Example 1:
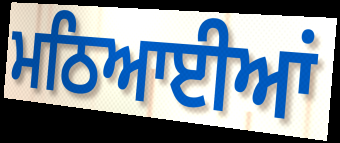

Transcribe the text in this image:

ਮਠਿਆਈਆਂ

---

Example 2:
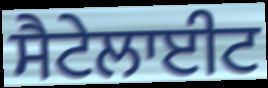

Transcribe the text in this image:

ਸੈਟੇਲਾਈਟ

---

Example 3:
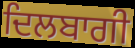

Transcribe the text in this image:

ਦਿਲਬਾਗੀ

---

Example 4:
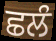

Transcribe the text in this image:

ਛਲੰ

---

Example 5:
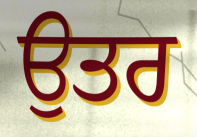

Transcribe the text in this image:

ਉਤਰ